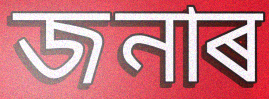
জনাৰ